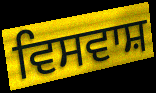
ਵਿਸਵਾਸ਼